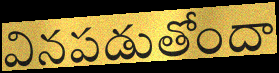
వినపడుతోందా